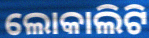
ଲୋକାଲିଟି